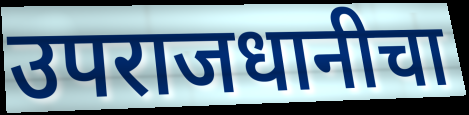
उपराजधानीचा